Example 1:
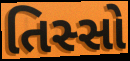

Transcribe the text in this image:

તિસ્સો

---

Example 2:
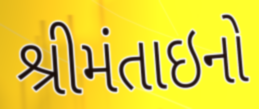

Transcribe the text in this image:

શ્રીમંતાઇનો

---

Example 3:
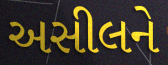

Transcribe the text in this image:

અસીલને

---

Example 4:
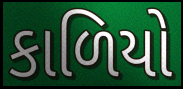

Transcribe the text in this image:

કાળિયો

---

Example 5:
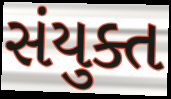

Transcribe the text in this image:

સંયુક્ત